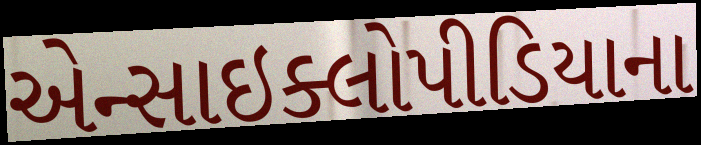
એન્સાઇક્લોપીડિયાના